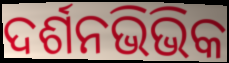
ଦର୍ଶନଭିଭିକ